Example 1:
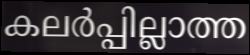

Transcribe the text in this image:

കലർപ്പില്ലാത്ത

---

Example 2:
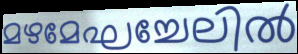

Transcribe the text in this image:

മഴമേഘച്ചേലിൽ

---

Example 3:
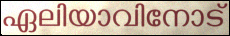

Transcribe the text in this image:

ഏലിയാവിനോട്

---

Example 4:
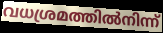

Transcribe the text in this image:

വധശ്രമത്തിൽനിന്ന്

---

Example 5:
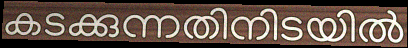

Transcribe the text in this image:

കടക്കുന്നതിനിടയിൽ